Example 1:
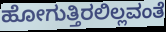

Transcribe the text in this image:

ಹೋಗುತ್ತಿರಲಿಲ್ಲವಂತೆ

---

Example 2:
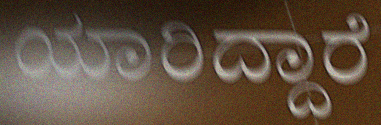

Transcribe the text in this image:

ಯಾರಿದ್ದಾರೆ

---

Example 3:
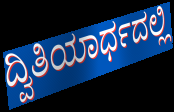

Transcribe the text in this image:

ದ್ವಿತಿಯಾರ್ಧದಲ್ಲಿ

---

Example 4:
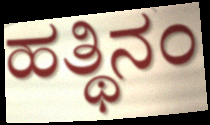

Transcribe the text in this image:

ಹತ್ಥಿನಂ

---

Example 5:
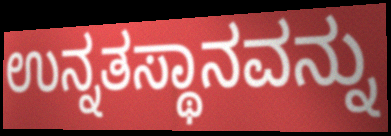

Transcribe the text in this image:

ಉನ್ನತಸ್ಥಾನವನ್ನು